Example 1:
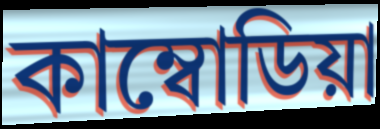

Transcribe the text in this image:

কাম্বোডিয়া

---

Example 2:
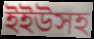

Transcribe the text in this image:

ইইউসহ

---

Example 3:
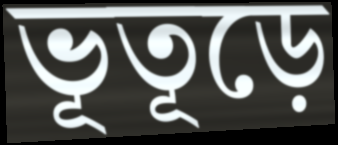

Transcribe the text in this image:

ভূতূড়ে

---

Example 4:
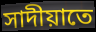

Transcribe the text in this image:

সাদীয়াতে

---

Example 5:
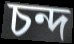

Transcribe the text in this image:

চন্দ